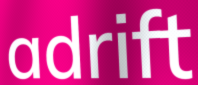
adrift